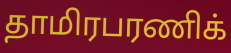
தாமிரபரணிக்